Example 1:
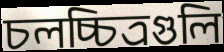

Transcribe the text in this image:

চলচ্চিত্রগুলি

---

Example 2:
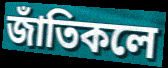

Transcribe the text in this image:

জাঁতিকলে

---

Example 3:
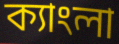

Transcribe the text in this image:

ক্যাংলা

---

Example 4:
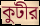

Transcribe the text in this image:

কুটীর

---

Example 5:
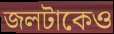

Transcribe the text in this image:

জলটাকেও